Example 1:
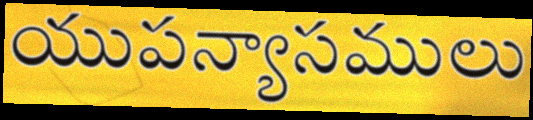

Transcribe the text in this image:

యుపన్యాసములు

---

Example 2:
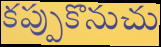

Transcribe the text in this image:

కప్పుకొనుచు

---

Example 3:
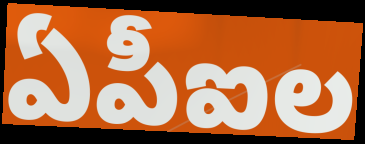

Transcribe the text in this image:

ఏపీఐల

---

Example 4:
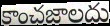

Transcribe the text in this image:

కాంచజాలదు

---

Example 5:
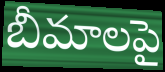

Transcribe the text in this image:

బీమాలపై